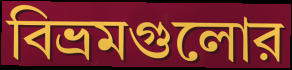
বিভ্রমগুলোর